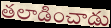
తలాడించాడు